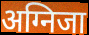
अग्निजा